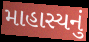
માહાસ્યનું